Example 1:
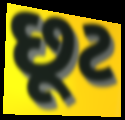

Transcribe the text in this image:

છૂટ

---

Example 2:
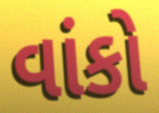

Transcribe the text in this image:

વાંકો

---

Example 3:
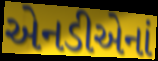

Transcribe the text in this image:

એનડીએનાં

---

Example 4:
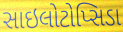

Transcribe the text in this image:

સાઇલોટોપ્સિડા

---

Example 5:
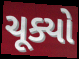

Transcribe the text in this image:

ચૂક્યો